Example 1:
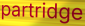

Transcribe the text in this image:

partridge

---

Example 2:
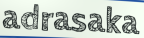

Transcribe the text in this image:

adrasaka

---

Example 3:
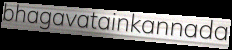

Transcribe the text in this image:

bhagavatainkannada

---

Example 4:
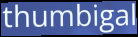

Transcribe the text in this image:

thumbigal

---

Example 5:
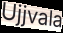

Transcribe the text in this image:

Ujjvala